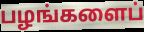
பழங்களைப்